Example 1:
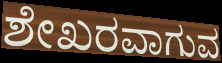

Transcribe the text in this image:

ಶೇಖರವಾಗುವ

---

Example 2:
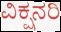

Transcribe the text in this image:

ವಿಕ್ಷನರಿ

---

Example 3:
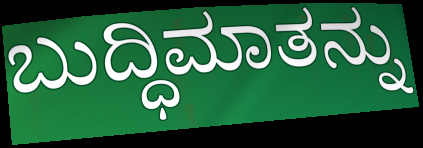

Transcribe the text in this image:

ಬುದ್ಧಿಮಾತನ್ನು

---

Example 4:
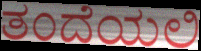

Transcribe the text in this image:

ತಂದೆಯಲಿ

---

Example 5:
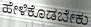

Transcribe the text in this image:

ಹೇಳಿಕೊಡಬೇಕು